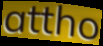
attho